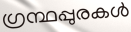
ഗ്രന്ഥപ്പുരകൾ